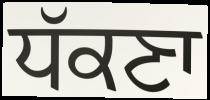
ਧੱਕਣਾ